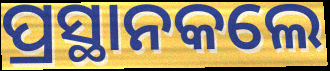
ପ୍ରସ୍ଥାନକଲେ